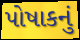
પોષાકનું